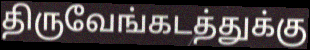
திருவேங்கடத்துக்கு